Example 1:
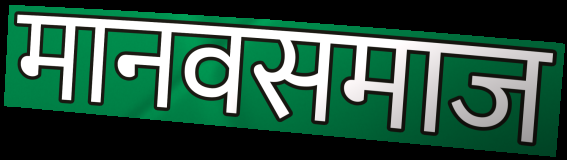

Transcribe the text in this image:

मानवसमाज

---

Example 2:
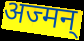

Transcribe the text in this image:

अज्मन्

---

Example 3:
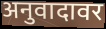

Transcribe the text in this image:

अनुवादावर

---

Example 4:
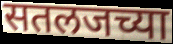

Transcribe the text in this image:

सतलजच्या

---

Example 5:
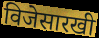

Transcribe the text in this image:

विजेसारखी